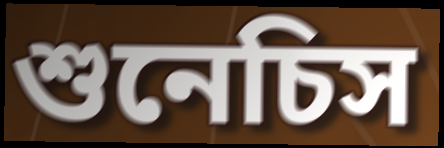
শুনেচিস